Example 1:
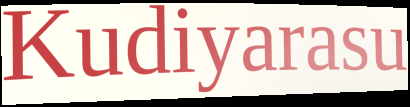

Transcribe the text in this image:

Kudiyarasu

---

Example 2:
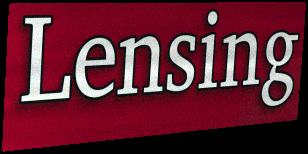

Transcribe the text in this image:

Lensing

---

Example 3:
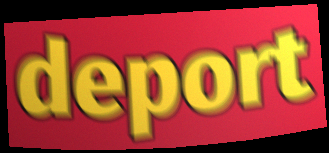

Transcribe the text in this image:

deport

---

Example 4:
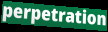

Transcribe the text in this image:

perpetration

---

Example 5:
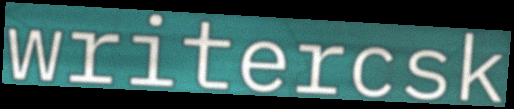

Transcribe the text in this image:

writercsk